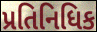
પ્રતિનિધિક